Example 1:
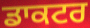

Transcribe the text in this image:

ਡਾਕਟਰ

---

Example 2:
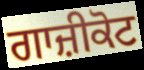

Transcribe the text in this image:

ਗਾਜ਼ੀਕੋਟ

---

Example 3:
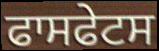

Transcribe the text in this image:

ਫਾਸਫੇਟਸ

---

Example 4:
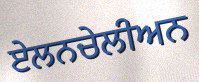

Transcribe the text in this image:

ਏਲਨਚੇਲੀਅਨ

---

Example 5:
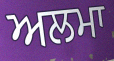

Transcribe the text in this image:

ਅਲਮਾ